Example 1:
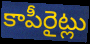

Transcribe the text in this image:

కాపీరైట్లు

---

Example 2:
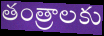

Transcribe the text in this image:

తంత్రాలకు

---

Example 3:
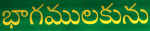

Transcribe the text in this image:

భాగములకును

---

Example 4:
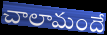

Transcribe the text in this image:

చాలామందే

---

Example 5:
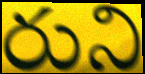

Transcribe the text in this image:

రుని